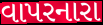
વાપરનારા